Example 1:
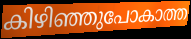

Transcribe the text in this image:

കിഴിഞ്ഞുപോകാത്ത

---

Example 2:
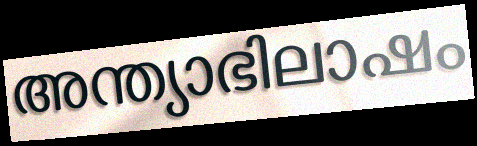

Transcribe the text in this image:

അന്ത്യാഭിലാഷം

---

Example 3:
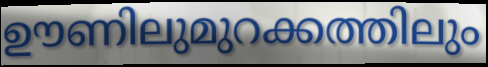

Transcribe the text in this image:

ഊണിലുമുറക്കത്തിലും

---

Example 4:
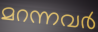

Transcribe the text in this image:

മറന്നവർ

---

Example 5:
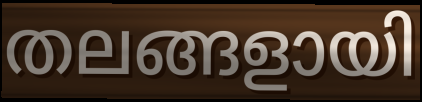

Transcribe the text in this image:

തലങ്ങളായി